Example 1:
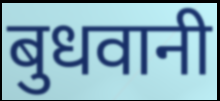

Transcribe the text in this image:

बुधवानी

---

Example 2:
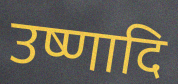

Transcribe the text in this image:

उष्णादि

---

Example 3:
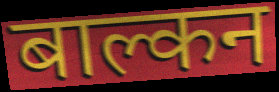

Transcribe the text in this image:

बाल्कन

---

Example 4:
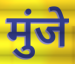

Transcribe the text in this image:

मुंजे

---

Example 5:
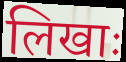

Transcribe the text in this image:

लिखाः